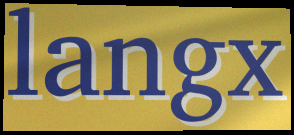
langx